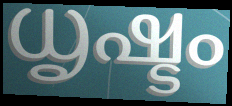
ധൃഷ്ടം